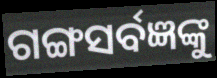
ଗଙ୍ଗସର୍ବଜ୍ଞଙ୍କୁ